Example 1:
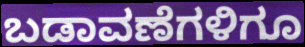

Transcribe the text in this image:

ಬಡಾವಣೆಗಳಿಗೂ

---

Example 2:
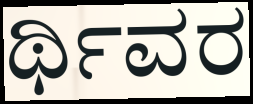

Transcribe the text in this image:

ರ್ಥಿವರ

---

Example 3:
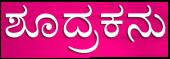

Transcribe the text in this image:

ಶೂದ್ರಕನು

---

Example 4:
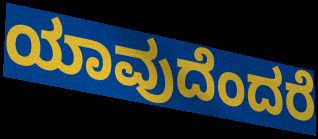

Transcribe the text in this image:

ಯಾವುದೆಂದರೆ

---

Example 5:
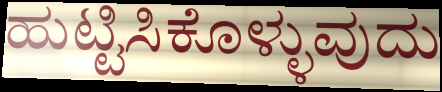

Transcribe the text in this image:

ಹುಟ್ಟಿಸಿಕೊಳ್ಳುವುದು